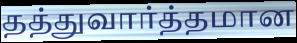
தத்துவார்த்தமான